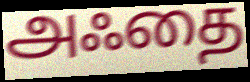
அஃதை